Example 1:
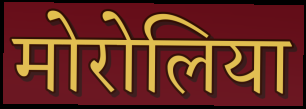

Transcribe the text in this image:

मोरोलिया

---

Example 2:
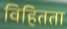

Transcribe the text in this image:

विहितता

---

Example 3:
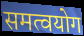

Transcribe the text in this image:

समत्वयोग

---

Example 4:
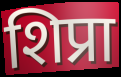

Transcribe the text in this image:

शिप्रा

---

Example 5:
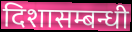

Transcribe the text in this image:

दिशासम्बन्धी